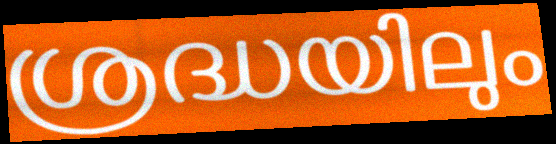
ശ്രദ്ധയിലും